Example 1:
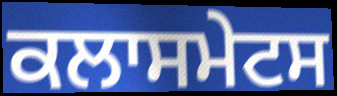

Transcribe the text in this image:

ਕਲਾਸਮੇਟਸ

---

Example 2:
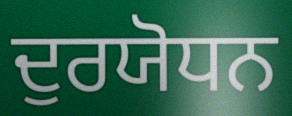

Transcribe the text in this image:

ਦੁਰਯੋਧਨ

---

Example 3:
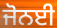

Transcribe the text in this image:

ਜੋਨਈ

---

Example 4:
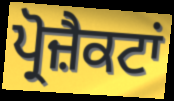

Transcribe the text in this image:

ਪ੍ਰੋਜ਼ੈਕਟਾਂ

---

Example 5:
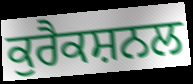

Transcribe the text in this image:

ਕੁਰੈਕਸ਼ਨਲ